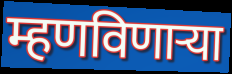
म्हणविणाऱ्या